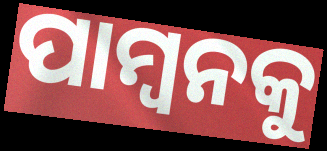
ପାମ୍ବନକୁ